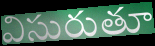
విసురుతూ